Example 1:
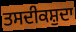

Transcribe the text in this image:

ਤਸਦੀਕਸ਼ੁਦਾ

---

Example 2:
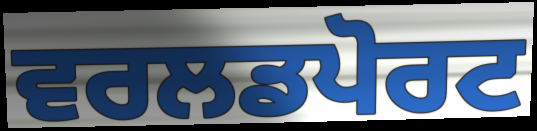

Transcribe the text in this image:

ਵਰਲਡਪੋਰਟ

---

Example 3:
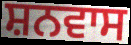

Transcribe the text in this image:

ਸ਼ਨਵਾਸ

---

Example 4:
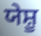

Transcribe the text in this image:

ਯੇਸ਼ੂ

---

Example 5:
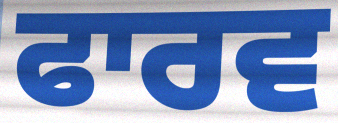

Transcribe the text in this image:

ਫਾਰਵ